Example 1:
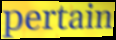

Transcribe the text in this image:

pertain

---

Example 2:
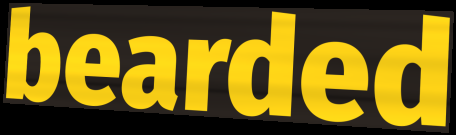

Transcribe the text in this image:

bearded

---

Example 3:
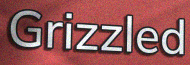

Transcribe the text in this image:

Grizzled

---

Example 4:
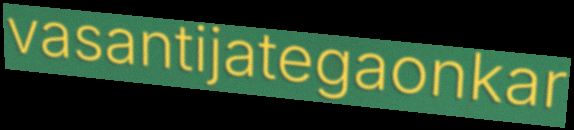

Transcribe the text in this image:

vasantijategaonkar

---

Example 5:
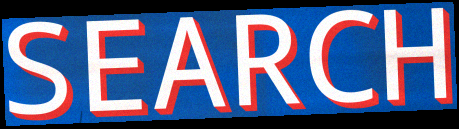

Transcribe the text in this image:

SEARCH